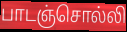
பாடஞ்சொல்லி